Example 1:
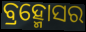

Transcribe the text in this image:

ବ୍ରହ୍ମୋସର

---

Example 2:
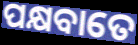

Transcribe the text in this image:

ପକ୍ଷବାତେ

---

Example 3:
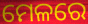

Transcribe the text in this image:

ମେଳରେ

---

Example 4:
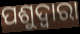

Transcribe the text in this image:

ପଶୁଦ୍ୱାରା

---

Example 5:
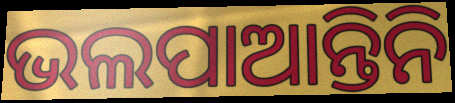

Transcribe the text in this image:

ଭଲପାଆନ୍ତିନି